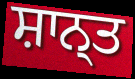
ਸ਼ਾਨ੍ਤ